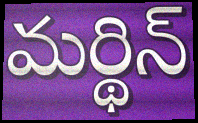
మర్థిన్